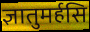
ज्ञातुमर्हसि